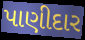
પાણીદાર